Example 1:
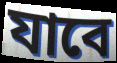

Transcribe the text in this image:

যাবে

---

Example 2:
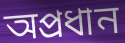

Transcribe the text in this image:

অপ্ৰধান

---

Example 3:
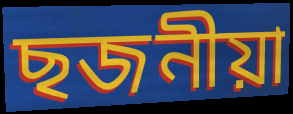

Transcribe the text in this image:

ছজনীয়া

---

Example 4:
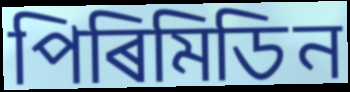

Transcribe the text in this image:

পিৰিমিডিন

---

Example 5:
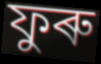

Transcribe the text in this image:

ফুৰু